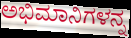
ಅಭಿಮಾನಿಗಳನ್ನ